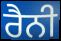
ਰੈਨੀ